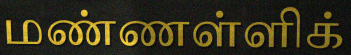
மண்ணள்ளிக்